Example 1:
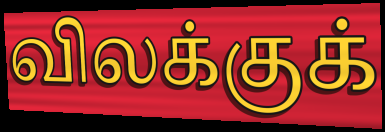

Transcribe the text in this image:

விலக்குக்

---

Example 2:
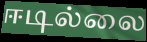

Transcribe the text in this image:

ஈடில்லை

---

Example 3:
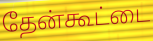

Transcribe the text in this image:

தேன்கூட்டை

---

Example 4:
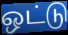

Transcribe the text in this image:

ஒட்டு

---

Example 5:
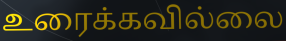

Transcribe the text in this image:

உரைக்கவில்லை